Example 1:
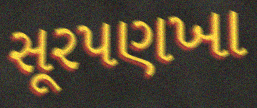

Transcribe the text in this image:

સૂરપણખા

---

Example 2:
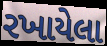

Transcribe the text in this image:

રખાયેલા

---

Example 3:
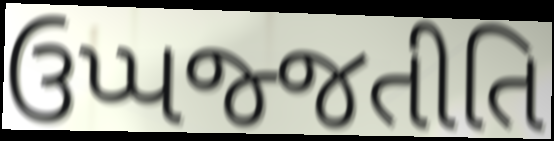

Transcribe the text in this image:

ઉપ્પજ્જતીતિ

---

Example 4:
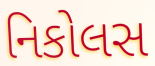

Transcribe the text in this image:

નિકોલસ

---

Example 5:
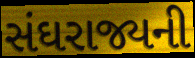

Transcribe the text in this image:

સંઘરાજ્યની